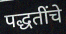
पद्धतींचे